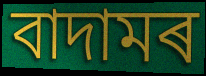
বাদামৰ